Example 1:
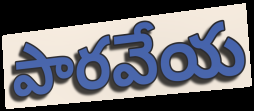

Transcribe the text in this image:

పారవేయ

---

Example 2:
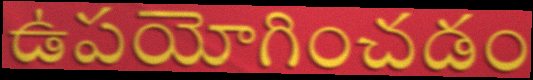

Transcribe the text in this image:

ఉపయోగించడం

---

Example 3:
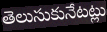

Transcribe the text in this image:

తెలుసుకునేటట్లు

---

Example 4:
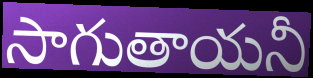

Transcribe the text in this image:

సాగుతాయనీ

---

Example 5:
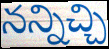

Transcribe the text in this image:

నన్నిచ్చి